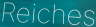
Reiches